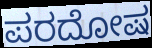
ಪರದೋಷ